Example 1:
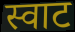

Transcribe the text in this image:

स्वाट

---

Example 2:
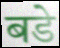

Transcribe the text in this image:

बडे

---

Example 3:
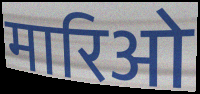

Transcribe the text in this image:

मारिओ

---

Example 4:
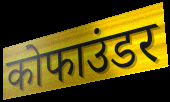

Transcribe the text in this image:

कोफाउंडर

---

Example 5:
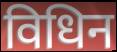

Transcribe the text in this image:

विधिन